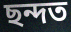
ছন্দত